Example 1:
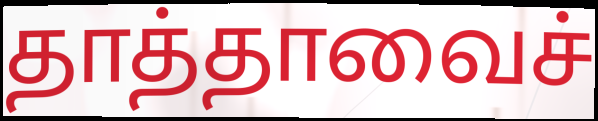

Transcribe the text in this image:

தாத்தாவைச்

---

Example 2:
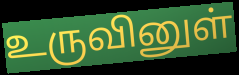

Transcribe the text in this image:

உருவினுள்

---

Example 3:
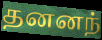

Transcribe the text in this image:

தனனந்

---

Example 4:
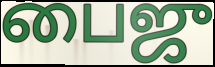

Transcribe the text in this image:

பைஜு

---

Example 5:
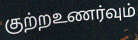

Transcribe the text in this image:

குற்றஉணர்வும்